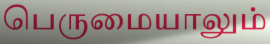
பெருமையாலும்